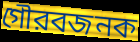
গৌরবজনক